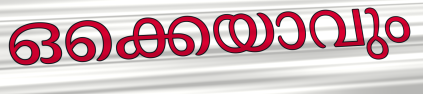
ഒക്കെയാവും